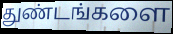
துண்டங்களை